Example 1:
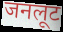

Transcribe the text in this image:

जनलूट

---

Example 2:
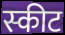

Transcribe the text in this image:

स्‍कीट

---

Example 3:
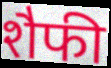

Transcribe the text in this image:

शैफी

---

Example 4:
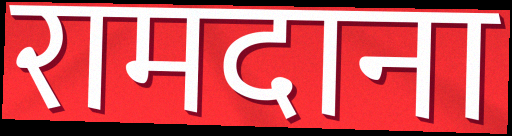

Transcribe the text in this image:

रामदाना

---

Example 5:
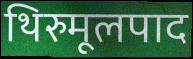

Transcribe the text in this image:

थिरुमूलपाद